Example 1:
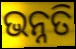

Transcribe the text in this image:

ଭନ୍ନତି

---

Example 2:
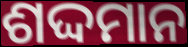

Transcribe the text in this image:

ଶଦ୍ଦମାନ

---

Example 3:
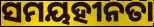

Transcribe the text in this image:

ସମୟହୀନତା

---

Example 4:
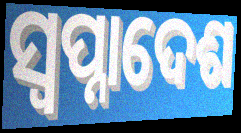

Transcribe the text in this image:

ସ୍ବପ୍ନାଦେଶ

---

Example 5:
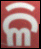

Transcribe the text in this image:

ଳି